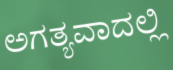
ಅಗತ್ಯವಾದಲ್ಲಿ